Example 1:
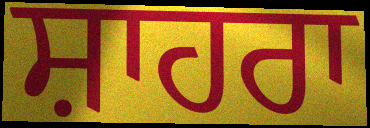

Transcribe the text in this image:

ਸ਼ਾਹਰਾ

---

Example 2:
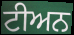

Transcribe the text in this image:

ਟੀਅਨ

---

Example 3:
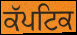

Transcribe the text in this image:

ਕੱਪਟਿਕ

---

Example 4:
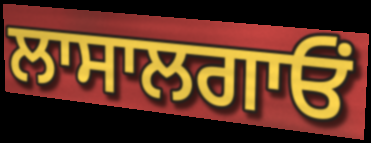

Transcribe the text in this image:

ਲਾਸਾਲਗਾਓਂ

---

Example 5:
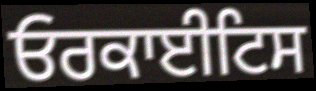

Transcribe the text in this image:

ਓਰਕਾਈਟਿਸ